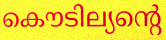
കൌടില്യന്റെ